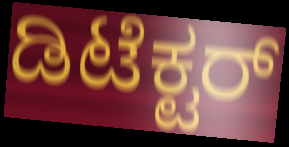
ಡಿಟೆಕ್ಟರ್